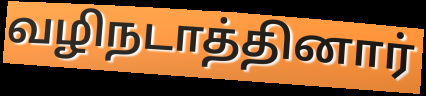
வழிநடாத்தினார்